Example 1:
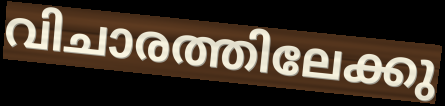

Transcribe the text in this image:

വിചാരത്തിലേക്കു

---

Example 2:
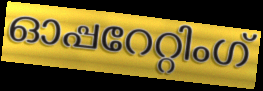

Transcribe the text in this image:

ഓപ്പറേറ്റിംഗ്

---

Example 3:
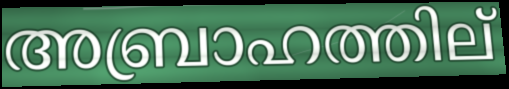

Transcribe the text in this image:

അബ്രാഹത്തില്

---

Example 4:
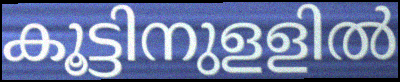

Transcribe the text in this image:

കൂട്ടിനുളളിൽ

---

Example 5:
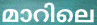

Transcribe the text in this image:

മാറിലെ